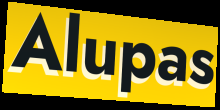
Alupas